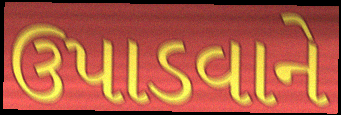
ઉપાડવાને